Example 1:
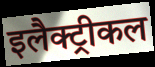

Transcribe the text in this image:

इलैक्ट्रीकल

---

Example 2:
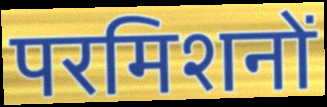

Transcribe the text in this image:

परमिशनों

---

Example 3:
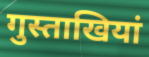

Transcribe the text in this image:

गुस्ताखियां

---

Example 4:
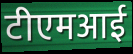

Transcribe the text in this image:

टीएमआई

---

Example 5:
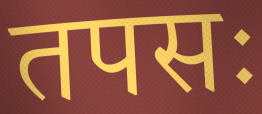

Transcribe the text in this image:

तपसः